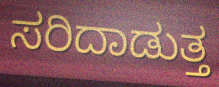
ಸರಿದಾಡುತ್ತ